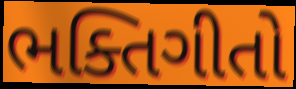
ભક્તિગીતો